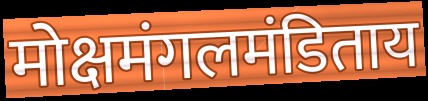
मोक्षमंगलमंडिताय